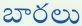
బారలు